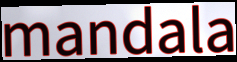
mandala